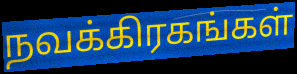
நவக்கிரகங்கள்